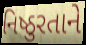
નિષ્ઠુરતાને